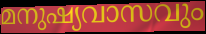
മനുഷ്യവാസവും